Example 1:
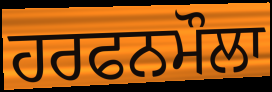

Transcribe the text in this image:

ਹਰਫਨਮੌਲਾ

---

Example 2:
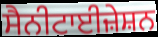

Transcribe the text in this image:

ਸੈਨੀਟਾਈਜ਼ੇਸ਼ਨ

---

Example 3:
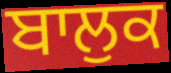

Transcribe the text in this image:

ਬਾਲੁਕ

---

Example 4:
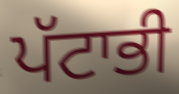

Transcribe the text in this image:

ਪੱਟਾਭੀ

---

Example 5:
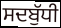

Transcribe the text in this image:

ਸਦਬੁੱਧੀ